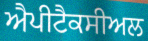
ਐਪੀਟੈਕਸੀਅਲ